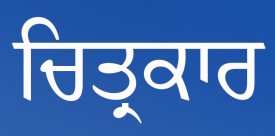
ਚਿਤ੍ਰਕਾਰ